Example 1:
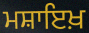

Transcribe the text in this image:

ਮਸ਼ਾਇਖ਼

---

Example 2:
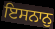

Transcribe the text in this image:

ਇਸਨਾਨੁ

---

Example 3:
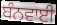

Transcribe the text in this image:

ਬੰਨਵਾਈ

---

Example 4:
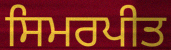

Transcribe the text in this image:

ਸਿਮਰਪੀਤ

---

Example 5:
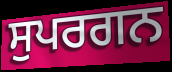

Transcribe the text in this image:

ਸੁਪਰਗਨ